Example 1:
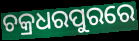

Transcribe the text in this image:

ଚକ୍ରଧରପୁରରେ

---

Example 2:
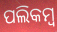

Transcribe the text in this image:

ପଲିକମ୍ବ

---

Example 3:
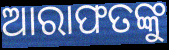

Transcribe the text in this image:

ଆରାଫତଙ୍କୁ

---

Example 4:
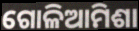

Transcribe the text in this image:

ଗୋଳିଆମିଶା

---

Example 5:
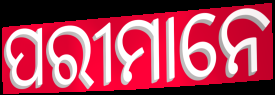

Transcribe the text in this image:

ପରୀମାନେ